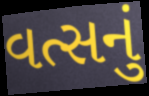
વત્સનું